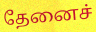
தேனைச்